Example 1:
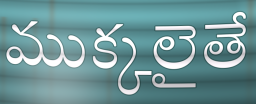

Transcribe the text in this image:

ముక్కలైతే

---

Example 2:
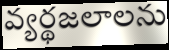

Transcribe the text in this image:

వ్యర్థజలాలను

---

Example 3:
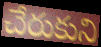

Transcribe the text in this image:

చేరుకుని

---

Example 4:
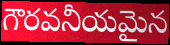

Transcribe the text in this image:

గౌరవనీయమైన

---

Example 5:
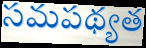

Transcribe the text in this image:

సమపథ్యత